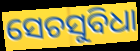
ସେଚସୁବିଧା